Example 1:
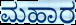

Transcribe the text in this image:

ಮಹಾರ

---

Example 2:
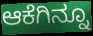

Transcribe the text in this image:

ಆಕೆಗಿನ್ನೂ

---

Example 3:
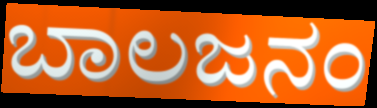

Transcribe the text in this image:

ಬಾಲಜನಂ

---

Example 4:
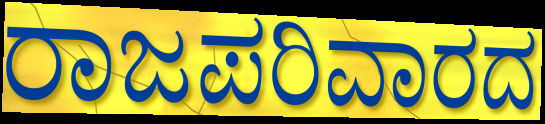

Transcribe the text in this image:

ರಾಜಪರಿವಾರದ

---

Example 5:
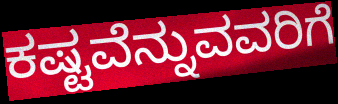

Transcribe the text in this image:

ಕಷ್ಟವೆನ್ನುವವರಿಗೆ